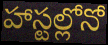
హాస్టల్లోనో